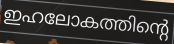
ഇഹലോകത്തിന്റെ